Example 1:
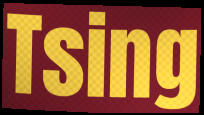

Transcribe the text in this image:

Tsing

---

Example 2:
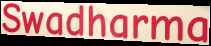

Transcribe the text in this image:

Swadharma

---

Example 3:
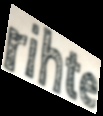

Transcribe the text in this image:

rihte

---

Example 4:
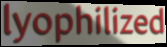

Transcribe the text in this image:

lyophilized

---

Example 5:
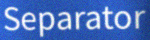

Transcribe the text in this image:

Separator